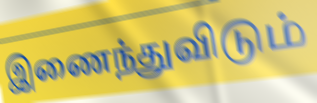
இணைந்துவிடும்